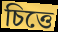
চিত্তে